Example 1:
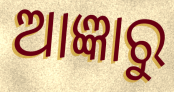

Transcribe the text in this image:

ଆଜ୍ଞାରୁ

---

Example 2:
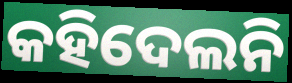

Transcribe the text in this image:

କହିଦେଲନି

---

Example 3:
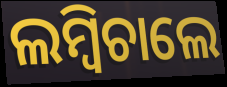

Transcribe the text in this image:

ଲମ୍ବିଚାଲେ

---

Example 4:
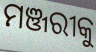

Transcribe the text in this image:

ମଞ୍ଜରୀକୁ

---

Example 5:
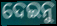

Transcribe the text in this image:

ଦେଇନୁ